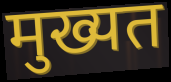
मुख्‍यत